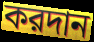
করদান